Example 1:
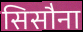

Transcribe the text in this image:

सिसौना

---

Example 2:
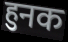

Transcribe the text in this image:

हुनक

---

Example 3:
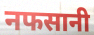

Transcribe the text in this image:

नफसानी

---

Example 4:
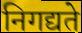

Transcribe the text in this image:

निगद्यते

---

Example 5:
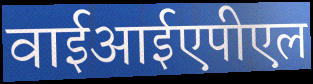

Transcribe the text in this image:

वाईआईएपीएल